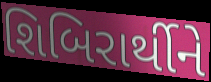
શિબિરાર્થીને